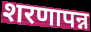
शरणापन्न